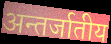
अन्तर्जातीय